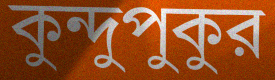
কুন্দুপুকুর